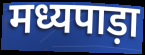
मध्यपाड़ा